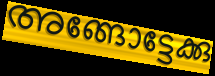
അങ്ങോട്ടേക്കു